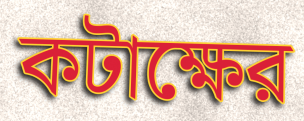
কটাক্ষের